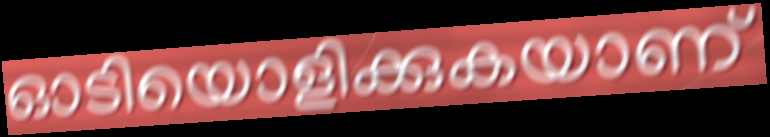
ഓടിയൊളിക്കുകയാണ്